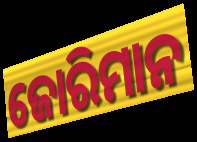
ଜୋରିମାନ